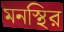
মনস্থির